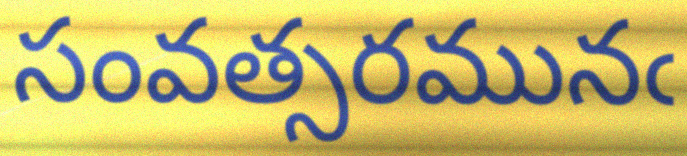
సంవత్సరమునఁ